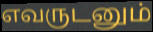
எவருடனும்